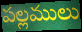
పల్లములు